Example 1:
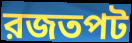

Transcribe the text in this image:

রজতপট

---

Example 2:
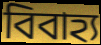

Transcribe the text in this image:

বিবাহ্য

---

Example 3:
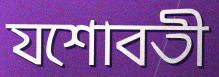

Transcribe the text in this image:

যশোবতী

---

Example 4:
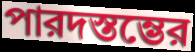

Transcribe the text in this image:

পারদস্তম্ভের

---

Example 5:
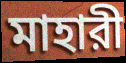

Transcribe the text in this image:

মাহারী